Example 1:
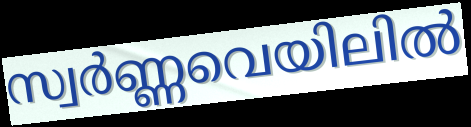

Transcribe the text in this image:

സ്വർണ്ണവെയിലിൽ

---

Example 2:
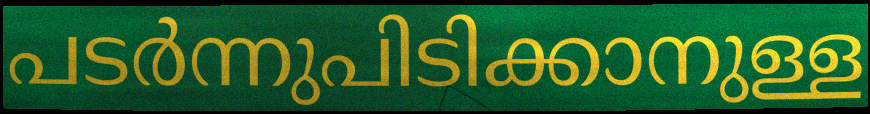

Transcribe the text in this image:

പടർന്നുപിടിക്കാനുള്ള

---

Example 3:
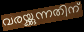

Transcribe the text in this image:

വരയ്ക്കുന്നതിന്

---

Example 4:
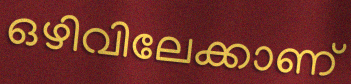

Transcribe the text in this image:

ഒഴിവിലേക്കാണ്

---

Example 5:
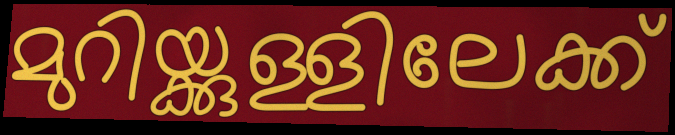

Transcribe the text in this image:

മുറിയ്ക്കുള്ളിലേക്ക്